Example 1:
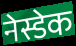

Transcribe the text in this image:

नेस्डेक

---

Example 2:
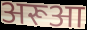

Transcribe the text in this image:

अरूआ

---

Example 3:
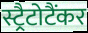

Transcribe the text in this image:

स्ट्रैटोटैंकर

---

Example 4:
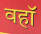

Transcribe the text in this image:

वहॉ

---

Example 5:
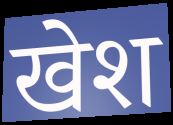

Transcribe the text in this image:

खेश